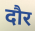
दौर